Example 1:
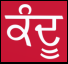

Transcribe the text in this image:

ਕੰਦੂ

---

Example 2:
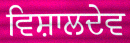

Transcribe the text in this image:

ਵਿਸ਼ਾਲਦੇਵ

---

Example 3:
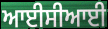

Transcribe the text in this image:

ਆਈਸੀਆਈ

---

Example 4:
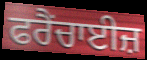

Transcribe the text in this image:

ਫਰੈਂਚਾਈਜ਼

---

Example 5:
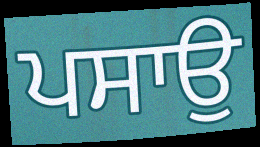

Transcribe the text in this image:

ਪਸਾਉ